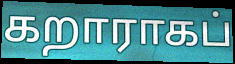
கறாராகப்